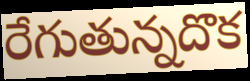
రేగుతున్నదొక